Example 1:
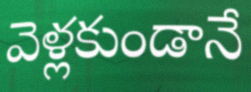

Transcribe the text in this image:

వెళ్లకుండానే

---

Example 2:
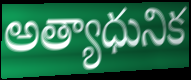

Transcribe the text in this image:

అత్యాధునిక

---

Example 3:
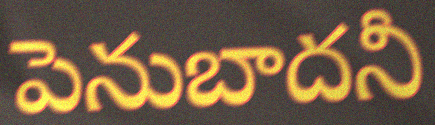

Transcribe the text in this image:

పెనుబాదనీ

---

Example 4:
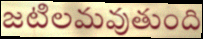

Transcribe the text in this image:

జటిలమవుతుంది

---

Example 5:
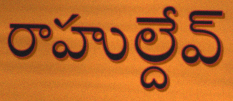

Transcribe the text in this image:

రాహుల్దేవ్